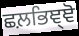
ਛਲ਼ਭਿਞ੍ਞੋ